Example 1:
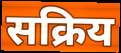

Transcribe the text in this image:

सक्रिय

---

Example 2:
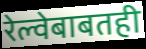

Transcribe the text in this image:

रेल्वेबाबतही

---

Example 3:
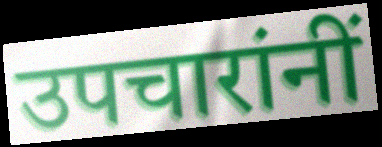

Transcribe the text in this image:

उपचारांनीं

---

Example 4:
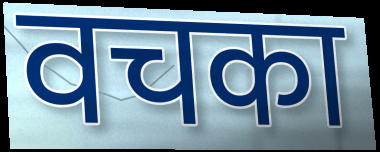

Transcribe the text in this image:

वचका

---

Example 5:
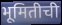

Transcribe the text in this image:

भूमितीची